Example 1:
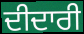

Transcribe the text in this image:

ਦੀਦਾਰੀ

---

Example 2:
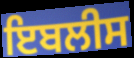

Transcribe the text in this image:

ਇਬਲੀਸ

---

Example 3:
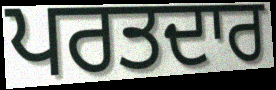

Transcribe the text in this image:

ਪਰਤਦਾਰ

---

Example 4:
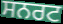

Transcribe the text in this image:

ਸਨਰਟ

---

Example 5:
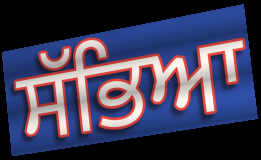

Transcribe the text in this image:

ਸੱਭਿਆ